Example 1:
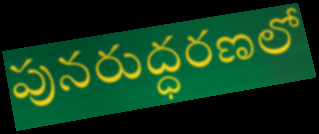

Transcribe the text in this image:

పునరుద్ధరణలో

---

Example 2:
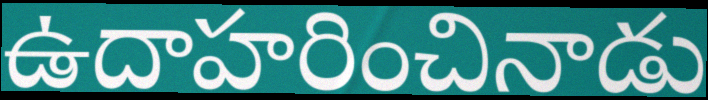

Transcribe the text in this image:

ఉదాహరించినాడు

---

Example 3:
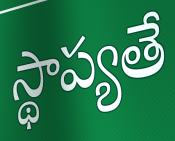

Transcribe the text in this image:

స్థాప్యతే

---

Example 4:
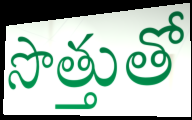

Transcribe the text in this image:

సొత్తుతో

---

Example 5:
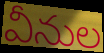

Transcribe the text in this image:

వీనుల